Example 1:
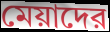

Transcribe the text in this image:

মেয়াদের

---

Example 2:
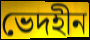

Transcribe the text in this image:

ভেদহীন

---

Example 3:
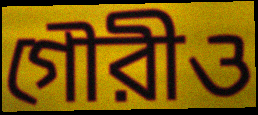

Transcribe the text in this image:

গৌরীও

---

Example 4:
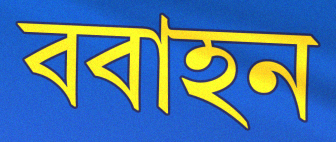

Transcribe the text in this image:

ববাহন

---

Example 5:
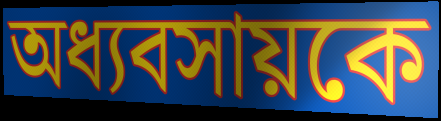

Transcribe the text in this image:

অধ্যবসায়কে